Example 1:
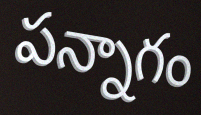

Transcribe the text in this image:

పన్నాగం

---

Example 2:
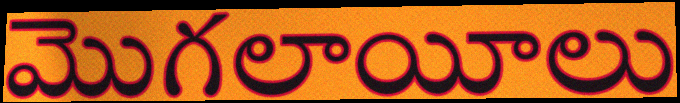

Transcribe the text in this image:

మొగలాయీలు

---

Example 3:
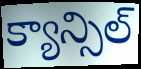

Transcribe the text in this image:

క్యాన్సిల్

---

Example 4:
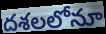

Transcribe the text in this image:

దశలలోనూ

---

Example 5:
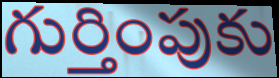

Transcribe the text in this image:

గుర్తింపుకు